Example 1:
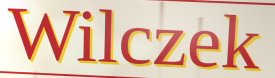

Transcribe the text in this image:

Wilczek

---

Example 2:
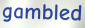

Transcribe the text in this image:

gambled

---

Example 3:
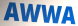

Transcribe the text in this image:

AWWA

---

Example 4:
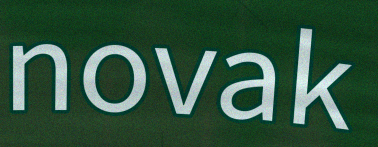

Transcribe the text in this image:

novak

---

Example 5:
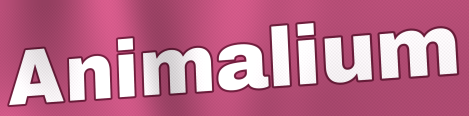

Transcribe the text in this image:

Animalium